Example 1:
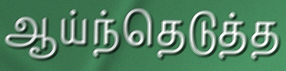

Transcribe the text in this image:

ஆய்ந்தெடுத்த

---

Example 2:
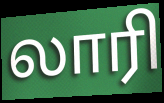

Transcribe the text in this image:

லாரி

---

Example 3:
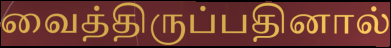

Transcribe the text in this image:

வைத்திருப்பதினால்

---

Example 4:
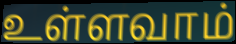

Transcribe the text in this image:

உள்ளவாம்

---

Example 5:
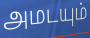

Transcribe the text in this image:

அமடயும்